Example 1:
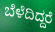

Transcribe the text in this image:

ಬೆಳೆದಿದ್ದರೆ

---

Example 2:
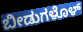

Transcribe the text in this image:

ಬೀಡುಗಳೊಳ್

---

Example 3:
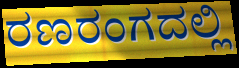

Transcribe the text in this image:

ರಣರಂಗದಲ್ಲಿ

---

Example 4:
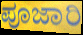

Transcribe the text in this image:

ಪೂಜಾರಿ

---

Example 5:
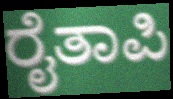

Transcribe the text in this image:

ರೈತಾಪಿ